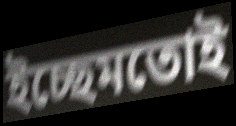
ইচ্ছেমতোই